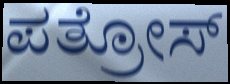
ಪತ್ರೋಸ್